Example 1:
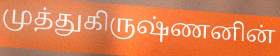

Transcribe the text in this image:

முத்துகிருஷ்ணனின்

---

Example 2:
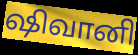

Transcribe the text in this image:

ஷிவானி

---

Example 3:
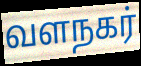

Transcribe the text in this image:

வளநகர்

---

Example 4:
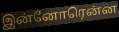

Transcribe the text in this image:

இன்னோரென்ன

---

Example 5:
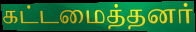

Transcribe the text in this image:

கட்டமைத்தனர்